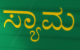
ಸ್ಯಾಮ